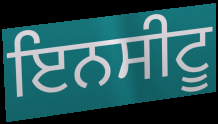
ਇਨਸੀਟੂ